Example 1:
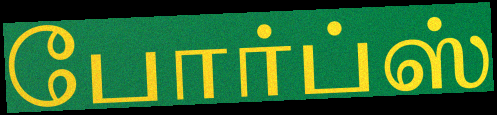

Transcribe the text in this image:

போர்ப்ஸ்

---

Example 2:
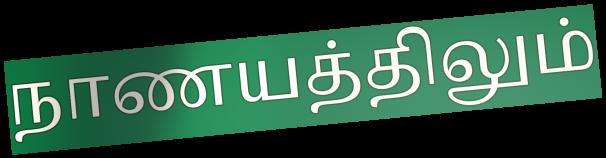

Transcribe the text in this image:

நாணயத்திலும்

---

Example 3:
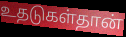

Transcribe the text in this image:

உதடுகள்தான்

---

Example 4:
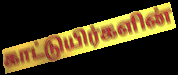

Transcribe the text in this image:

காட்டுயிர்களின்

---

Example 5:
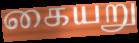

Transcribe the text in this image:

கையறு